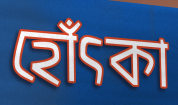
হোঁৎকা